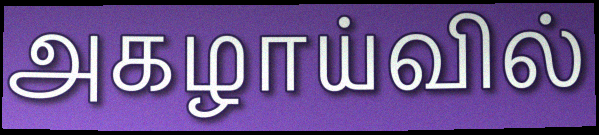
அகழாய்வில்